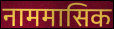
नाममासिक